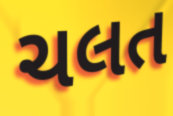
ચલત